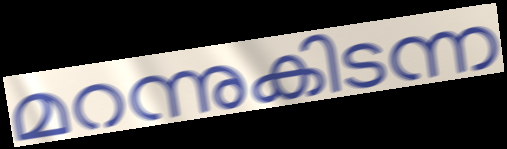
മറന്നുകിടന്ന